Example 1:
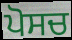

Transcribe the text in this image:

ਪੋਸਚ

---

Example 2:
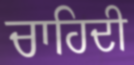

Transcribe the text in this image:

ਚਾਹਿਦੀ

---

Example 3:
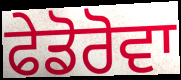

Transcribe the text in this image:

ਫੇਡੋਰੋਵਾ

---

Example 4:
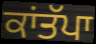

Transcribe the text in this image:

ਕਾਂਤੱਪਾ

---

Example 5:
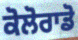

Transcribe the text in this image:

ਕੋਲੋਰਾਡੋ